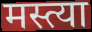
मस्त्या